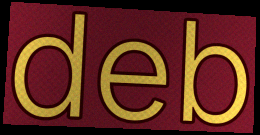
deb